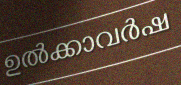
ഉൽക്കാവർഷ